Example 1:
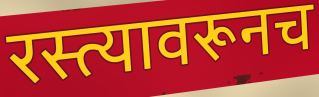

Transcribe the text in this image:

रस्त्यावरूनच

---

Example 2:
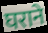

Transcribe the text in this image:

घराने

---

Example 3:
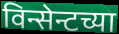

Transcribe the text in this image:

विन्सेन्टच्या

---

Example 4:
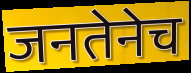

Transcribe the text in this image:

जनतेनेच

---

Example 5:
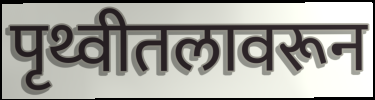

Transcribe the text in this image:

पृथ्वीतलावरून